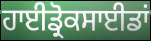
ਹਾਈਡ੍ਰੋਕਸਾਈਡਾਂ